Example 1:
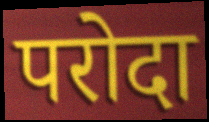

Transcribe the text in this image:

परोदा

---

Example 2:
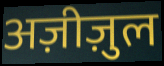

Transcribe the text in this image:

अज़ीज़ुल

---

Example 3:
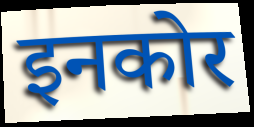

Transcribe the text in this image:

इनकोर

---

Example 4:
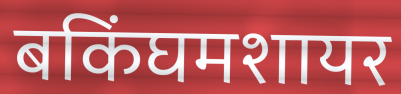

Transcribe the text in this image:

बकिंघमशायर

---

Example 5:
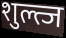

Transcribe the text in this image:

शुल्त्ज